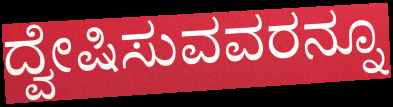
ದ್ವೇಷಿಸುವವರನ್ನೂ